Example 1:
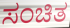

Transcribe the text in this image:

ಸಂಚಿತ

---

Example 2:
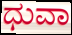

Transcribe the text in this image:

ಧುವಾ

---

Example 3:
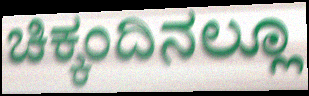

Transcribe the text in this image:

ಚಿಕ್ಕಂದಿನಲ್ಲೂ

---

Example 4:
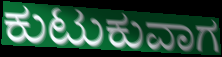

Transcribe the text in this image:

ಕುಟುಕುವಾಗ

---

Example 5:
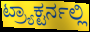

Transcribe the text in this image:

ಟ್ರ್ಯಾಕ್ಟರ್ನಲ್ಲಿ